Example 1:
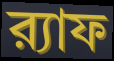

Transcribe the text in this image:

র‍্যাফ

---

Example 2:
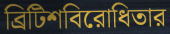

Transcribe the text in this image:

ব্রিটিশবিরোধিতার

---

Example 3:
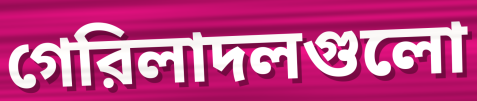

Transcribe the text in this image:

গেরিলাদলগুলো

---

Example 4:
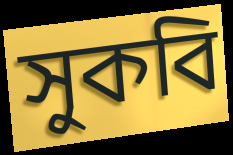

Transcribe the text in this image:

সুকবি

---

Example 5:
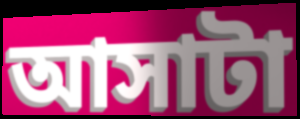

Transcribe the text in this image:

আসাটা